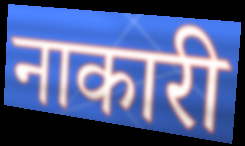
नाकारी